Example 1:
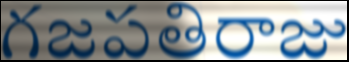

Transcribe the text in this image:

గజపతిరాజు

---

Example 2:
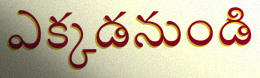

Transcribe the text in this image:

ఎక్కడనుండి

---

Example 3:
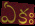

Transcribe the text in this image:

ఏకః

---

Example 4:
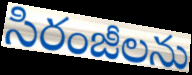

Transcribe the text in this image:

సిరంజీలను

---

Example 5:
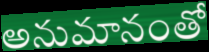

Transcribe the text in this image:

అనుమానంతో